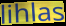
lihlas